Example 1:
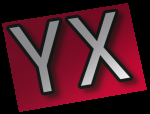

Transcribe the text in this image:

YX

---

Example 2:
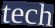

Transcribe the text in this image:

tech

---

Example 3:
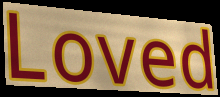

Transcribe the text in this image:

Loved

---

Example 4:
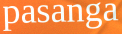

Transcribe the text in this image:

pasanga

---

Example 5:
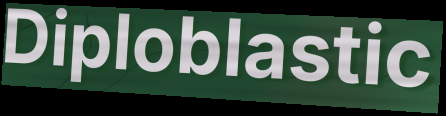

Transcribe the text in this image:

Diploblastic